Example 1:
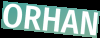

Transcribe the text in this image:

ORHAN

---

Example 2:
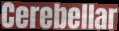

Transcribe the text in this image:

Cerebellar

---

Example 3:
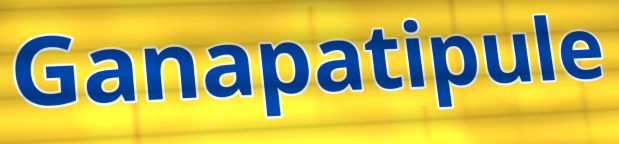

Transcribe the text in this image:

Ganapatipule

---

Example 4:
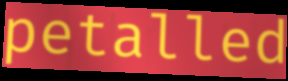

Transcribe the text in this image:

petalled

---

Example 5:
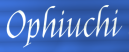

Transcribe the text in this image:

Ophiuchi